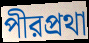
পীরপ্রথা